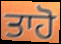
ਤਾਹੋ